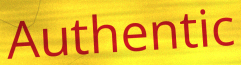
Authentic